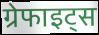
ग्रेफाइट्स